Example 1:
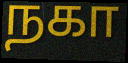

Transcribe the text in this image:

நகா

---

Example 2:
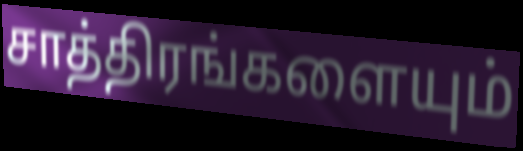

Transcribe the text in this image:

சாத்திரங்களையும்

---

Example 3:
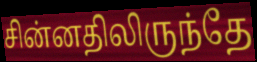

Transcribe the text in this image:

சின்னதிலிருந்தே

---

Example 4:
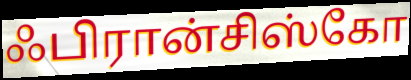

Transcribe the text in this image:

ஃபிரான்சிஸ்கோ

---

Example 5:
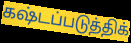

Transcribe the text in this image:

கஷ்டப்படுத்திக்